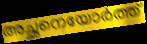
അച്ഛനെയോർത്ത്